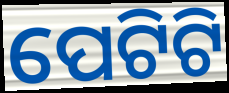
ପେଟିଟି